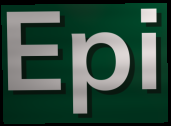
Epi